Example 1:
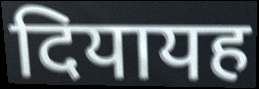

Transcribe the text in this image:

दियायह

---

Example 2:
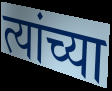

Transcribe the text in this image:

त्यांच्या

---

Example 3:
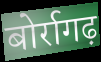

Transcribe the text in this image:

बोर्रागढ़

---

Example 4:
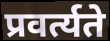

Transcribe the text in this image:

प्रवर्त्यते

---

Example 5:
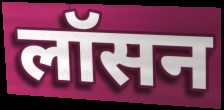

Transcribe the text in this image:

लॉसन